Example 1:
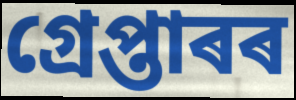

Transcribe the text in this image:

গ্ৰেপ্তাৰৰ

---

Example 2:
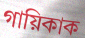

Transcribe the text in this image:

গায়িকাক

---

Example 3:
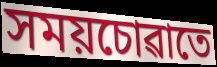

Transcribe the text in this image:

সময়চোৱাতে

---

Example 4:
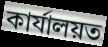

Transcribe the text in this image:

কাৰ্যালয়ত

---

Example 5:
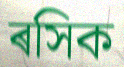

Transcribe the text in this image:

ৰসিক